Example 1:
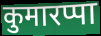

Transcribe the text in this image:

कुमारप्पा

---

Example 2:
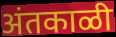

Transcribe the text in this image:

अंतकाळी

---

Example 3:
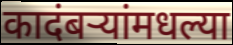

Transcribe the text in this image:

कादंबऱ्यांमधल्या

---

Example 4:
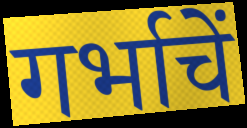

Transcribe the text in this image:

गर्भाचें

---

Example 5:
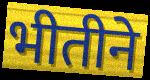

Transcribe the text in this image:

भीतीने